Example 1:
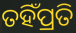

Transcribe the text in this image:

ତହିଁପ୍ରତି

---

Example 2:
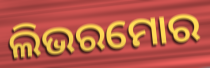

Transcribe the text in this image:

ଲିଭରମୋର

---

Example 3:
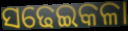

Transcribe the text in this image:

ସଢେଇକଳା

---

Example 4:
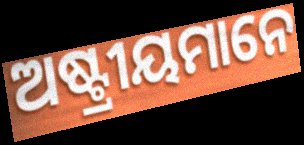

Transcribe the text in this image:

ଅଷ୍ଟ୍ରୀୟମାନେ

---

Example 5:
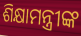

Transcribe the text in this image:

ଶିକ୍ଷାମନ୍ତ୍ରୀଙ୍କ